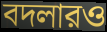
বদলারও